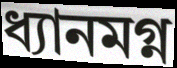
ধ্যানমগ্ন